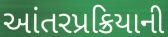
આંતરપ્રક્રિયાની